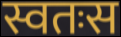
स्वतःस